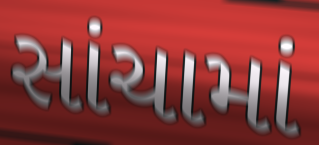
સાંચામાં